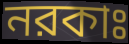
নরকাঃ